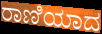
ರಾಣಿಯಾದ